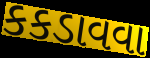
કકડાવવા